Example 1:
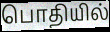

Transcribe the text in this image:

பொதியில்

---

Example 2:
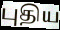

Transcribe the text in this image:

புதிய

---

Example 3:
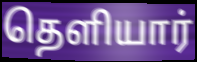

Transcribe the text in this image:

தெளியார்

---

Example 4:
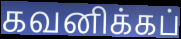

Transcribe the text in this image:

கவனிக்கப்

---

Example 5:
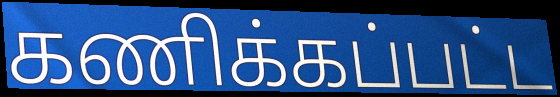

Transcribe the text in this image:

கணிக்கப்பட்ட